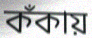
কঁকায়